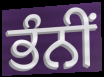
ਭੰਨੀਂ